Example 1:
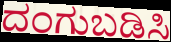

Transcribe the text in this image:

ದಂಗುಬಡಿಸಿ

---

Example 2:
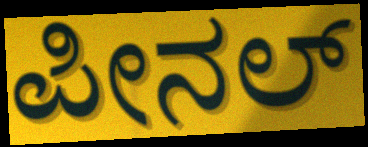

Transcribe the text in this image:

ಪೀನಲ್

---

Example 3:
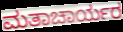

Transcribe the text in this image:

ಮತಾಚಾರ್ಯರ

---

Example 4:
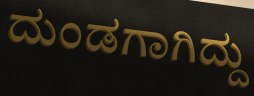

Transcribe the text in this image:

ದುಂಡಗಾಗಿದ್ದು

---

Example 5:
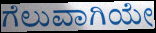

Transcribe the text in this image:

ಗೆಲುವಾಗಿಯೇ